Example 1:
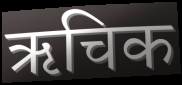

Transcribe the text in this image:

ऋचिक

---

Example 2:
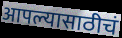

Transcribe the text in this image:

आपल्यासाठीचं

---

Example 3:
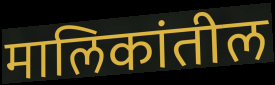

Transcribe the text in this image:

मालिकांतील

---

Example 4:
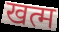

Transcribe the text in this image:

खत्म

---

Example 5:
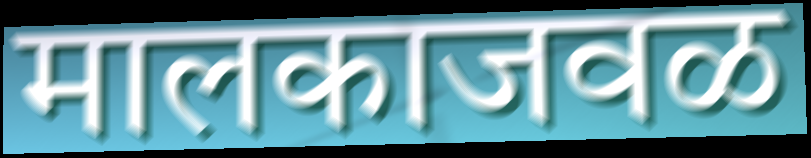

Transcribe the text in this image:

मालकाजवळ